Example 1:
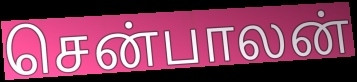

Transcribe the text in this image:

சென்பாலன்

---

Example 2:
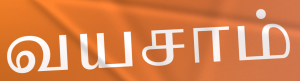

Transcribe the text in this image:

வயசாம்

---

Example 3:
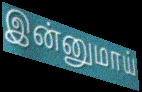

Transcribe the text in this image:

இன்னுமாய்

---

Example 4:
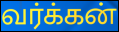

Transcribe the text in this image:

வர்க்கன்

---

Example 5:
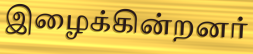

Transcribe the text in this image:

இழைக்கின்றனர்